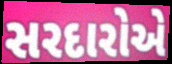
સરદારોએ